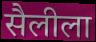
सैलीला